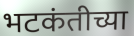
भटकंतीच्या